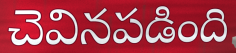
చెవినపడింది